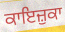
ਕਾਇਜ਼ੁਕਾ